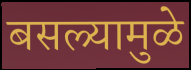
बसल्यामुळे